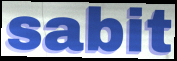
sabit